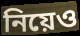
নিয়েও